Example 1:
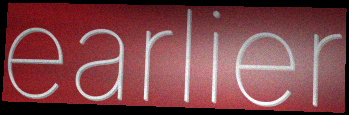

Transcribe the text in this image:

earlier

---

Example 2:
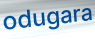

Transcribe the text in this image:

odugara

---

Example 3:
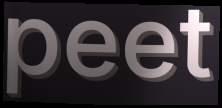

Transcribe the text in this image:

peet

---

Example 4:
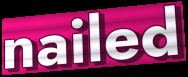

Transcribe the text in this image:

nailed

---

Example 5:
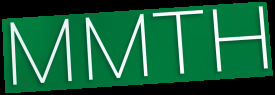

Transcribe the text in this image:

MMTH